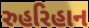
રુહરિહાન